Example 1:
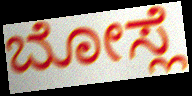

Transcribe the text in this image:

ಬೋಸ್ಲೆ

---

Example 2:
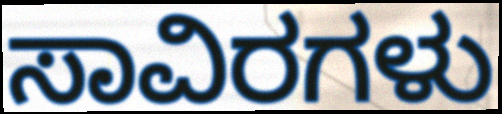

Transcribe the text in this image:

ಸಾವಿರಗಳು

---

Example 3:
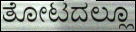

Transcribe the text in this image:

ತೋಟದಲ್ಲೂ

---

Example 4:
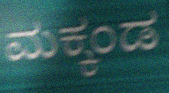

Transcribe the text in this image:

ಮಕ್ಕಂಡ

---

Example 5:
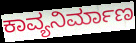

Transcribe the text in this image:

ಕಾವ್ಯನಿರ್ಮಾಣ